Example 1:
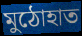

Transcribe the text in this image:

মুঠোহাত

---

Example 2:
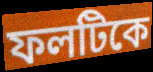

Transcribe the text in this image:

ফলটিকে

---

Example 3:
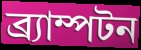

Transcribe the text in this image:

ব্র্যাম্পটন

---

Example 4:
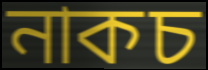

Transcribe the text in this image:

নাকচ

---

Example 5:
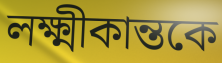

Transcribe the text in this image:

লক্ষ্মীকান্তকে